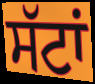
ਸੱਟਾਂ